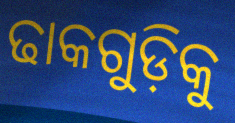
ଢାକଗୁଡ଼ିକୁ